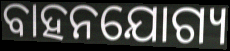
ବାହନଯୋଗ୍ୟ